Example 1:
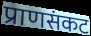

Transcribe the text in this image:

प्राणसंकट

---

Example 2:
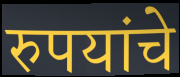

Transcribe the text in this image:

रुपयांचे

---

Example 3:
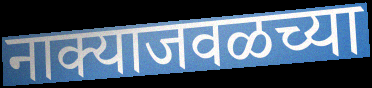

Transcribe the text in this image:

नाक्याजवळच्या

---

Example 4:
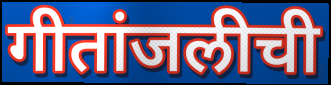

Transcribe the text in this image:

गीतांजलीची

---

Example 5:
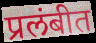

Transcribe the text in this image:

प्रलंबीत